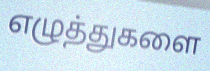
எழுத்துகளை